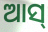
ଆସ୍